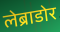
लेब्राडोर